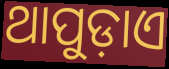
ଥାପୁଡ଼ାଏ